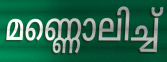
മണ്ണൊലിച്ച്